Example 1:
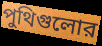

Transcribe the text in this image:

পুথিগুলোর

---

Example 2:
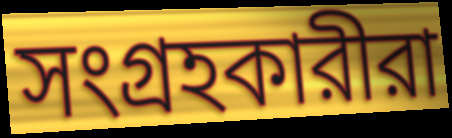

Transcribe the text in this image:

সংগ্রহকারীরা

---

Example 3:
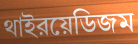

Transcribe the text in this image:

থাইরয়েডিজম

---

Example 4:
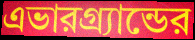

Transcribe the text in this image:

এভারগ্র্যান্ডের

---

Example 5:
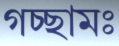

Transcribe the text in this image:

গচ্ছামঃ